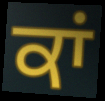
ਕਾਂ